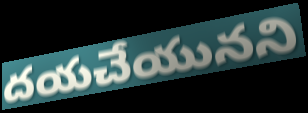
దయచేయునని